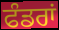
ਫੰਡਰਾਂ